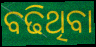
ବଢିଥିବା